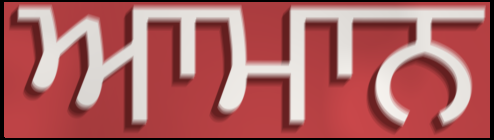
ਆਮਾਨ